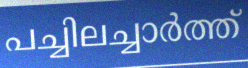
പച്ചിലച്ചാർത്ത്